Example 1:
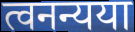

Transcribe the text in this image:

त्वनन्यया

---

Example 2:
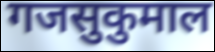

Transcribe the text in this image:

गजसुकुमाल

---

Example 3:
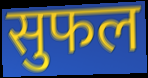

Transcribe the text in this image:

सुफल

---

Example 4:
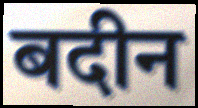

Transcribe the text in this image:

बदीन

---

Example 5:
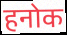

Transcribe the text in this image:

हनोक